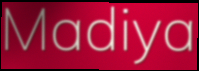
Madiya